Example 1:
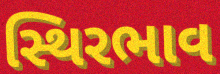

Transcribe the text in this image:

સ્થિરભાવ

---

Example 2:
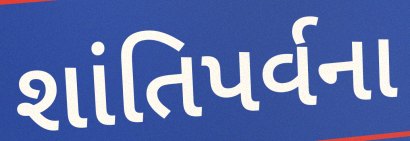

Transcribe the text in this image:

શાંતિપર્વના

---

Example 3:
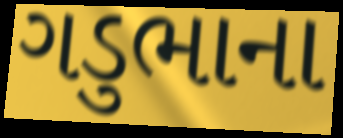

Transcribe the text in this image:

ગડુભાના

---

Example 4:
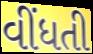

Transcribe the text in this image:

વીંધતી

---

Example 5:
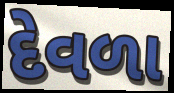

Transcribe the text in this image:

દેવળા